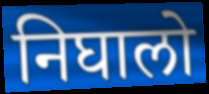
निघालो